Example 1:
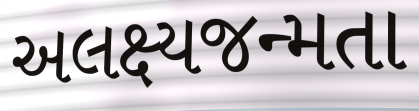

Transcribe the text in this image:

અલક્ષ્યજન્મતા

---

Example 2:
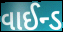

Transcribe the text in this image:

વાઈન્ડ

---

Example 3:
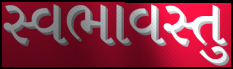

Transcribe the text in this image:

સ્વભાવસ્તુ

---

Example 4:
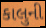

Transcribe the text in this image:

કાલુની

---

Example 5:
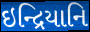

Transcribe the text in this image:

ઇન્દ્રિયાનિ